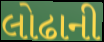
લોઢાની